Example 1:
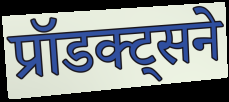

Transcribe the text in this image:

प्रॉडक्ट्सने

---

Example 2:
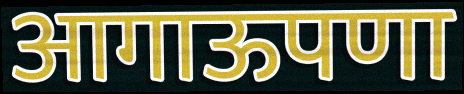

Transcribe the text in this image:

आगाऊपणा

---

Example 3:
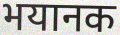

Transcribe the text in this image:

भयानक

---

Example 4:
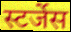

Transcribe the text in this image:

स्टर्जेस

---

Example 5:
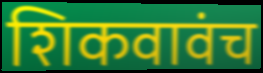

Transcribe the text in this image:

शिकवावंच